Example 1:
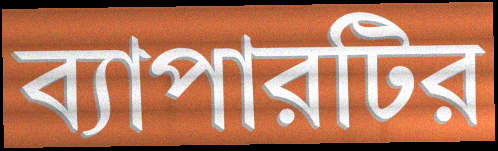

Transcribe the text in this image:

ব্যাপারটির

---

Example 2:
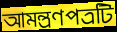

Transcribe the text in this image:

আমন্ত্রণপত্রটি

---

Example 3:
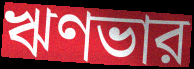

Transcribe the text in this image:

ঋণভার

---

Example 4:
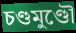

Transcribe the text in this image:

চণ্ডমুণ্ডৌ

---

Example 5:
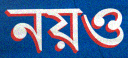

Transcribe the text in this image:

নয়ও